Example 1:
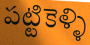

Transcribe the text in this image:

పట్టికెళ్ళి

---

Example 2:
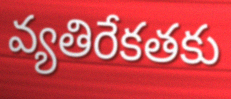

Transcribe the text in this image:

వ్యతిరేకతకు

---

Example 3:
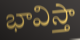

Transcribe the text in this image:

భావిస్తా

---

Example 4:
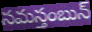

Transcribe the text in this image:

సమస్తంబున్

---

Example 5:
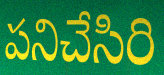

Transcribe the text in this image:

పనిచేసిరి